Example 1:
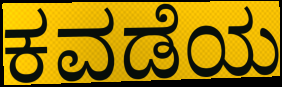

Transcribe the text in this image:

ಕವಡೆಯ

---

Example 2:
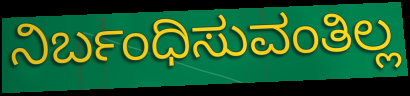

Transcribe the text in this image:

ನಿರ್ಬಂಧಿಸುವಂತಿಲ್ಲ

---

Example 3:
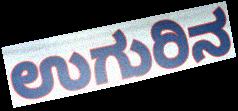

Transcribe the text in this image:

ಉಗುರಿನ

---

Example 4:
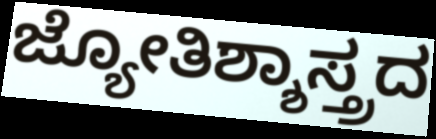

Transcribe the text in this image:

ಜ್ಯೋತಿಶ್ಶಾಸ್ತ್ರದ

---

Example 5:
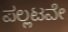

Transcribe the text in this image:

ಪಲ್ಲಟವೇ